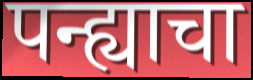
पन्ह्याचा